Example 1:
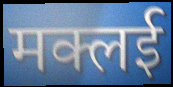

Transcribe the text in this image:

मक्लई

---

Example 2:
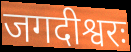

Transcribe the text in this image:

जगदीश्वरः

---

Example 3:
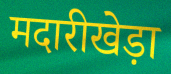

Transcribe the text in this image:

मदारीखेड़ा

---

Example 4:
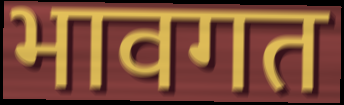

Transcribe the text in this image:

भावगत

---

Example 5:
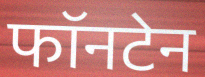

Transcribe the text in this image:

फॉनटेन